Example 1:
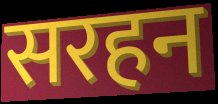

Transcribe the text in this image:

सरहन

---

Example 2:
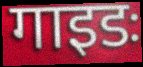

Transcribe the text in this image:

गाइडः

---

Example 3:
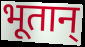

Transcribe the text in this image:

भूतान्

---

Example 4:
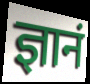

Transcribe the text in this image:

ज्ञानं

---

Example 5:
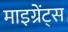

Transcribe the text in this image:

माइग्रेंट्स